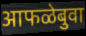
आफळेबुवा